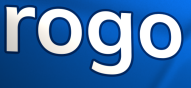
rogo